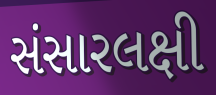
સંસારલક્ષી